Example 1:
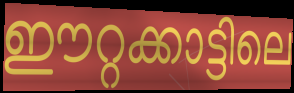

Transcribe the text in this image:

ഈറ്റക്കാട്ടിലെ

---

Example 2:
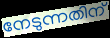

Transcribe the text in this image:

നേടുന്നതിന്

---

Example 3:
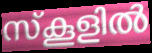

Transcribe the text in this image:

സ്‌കൂളിൽ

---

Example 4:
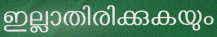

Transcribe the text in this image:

ഇല്ലാതിരിക്കുകയും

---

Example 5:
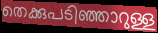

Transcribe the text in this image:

തെക്കുപടിഞ്ഞാറുള്ള